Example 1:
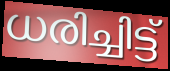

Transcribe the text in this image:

ധരിച്ചിട്ട്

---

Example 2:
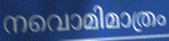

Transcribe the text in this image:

നവൊമിമാത്രം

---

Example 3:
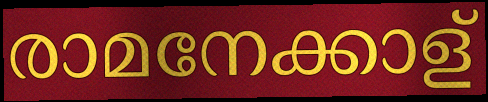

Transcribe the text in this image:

രാമനേക്കാള്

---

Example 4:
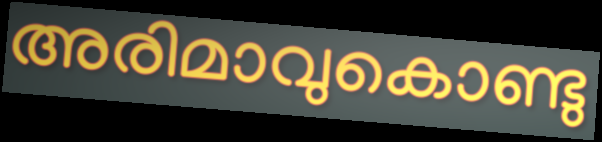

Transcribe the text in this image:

അരിമാവുകൊണ്ടു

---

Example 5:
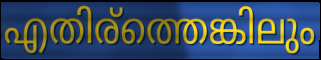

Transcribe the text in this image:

എതിര്ത്തെങ്കിലും